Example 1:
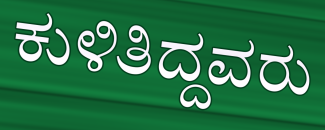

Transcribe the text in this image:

ಕುಳಿತಿದ್ದವರು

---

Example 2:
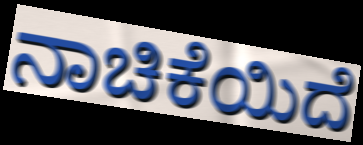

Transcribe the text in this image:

ನಾಚಿಕೆಯಿದೆ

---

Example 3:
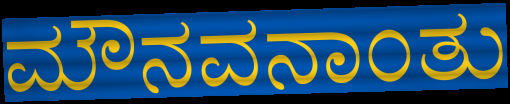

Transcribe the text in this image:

ಮೌನವನಾಂತು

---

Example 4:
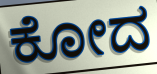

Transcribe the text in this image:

ಕೋದ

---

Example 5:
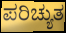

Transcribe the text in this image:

ಪರಿಚ್ಯುತ